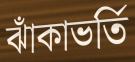
ঝাঁকাভর্তি